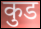
कुड